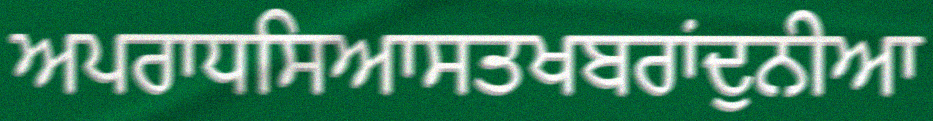
ਅਪਰਾਧਸਿਆਸਤਖਬਰਾਂਦੁਨੀਆ